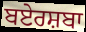
ਬਏਰਸ਼ਬਾ